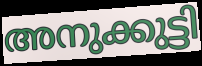
അനുക്കുട്ടി